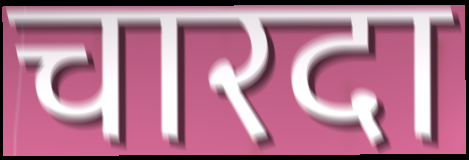
चारदा